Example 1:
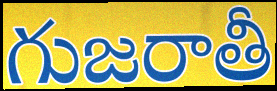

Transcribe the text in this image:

గుజరాతీ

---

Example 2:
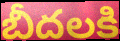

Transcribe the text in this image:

బీదలకి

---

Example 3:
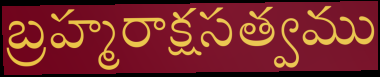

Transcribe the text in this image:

బ్రహ్మరాక్షసత్వము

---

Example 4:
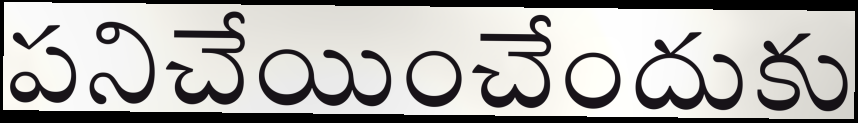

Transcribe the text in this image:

పనిచేయించేందుకు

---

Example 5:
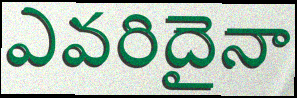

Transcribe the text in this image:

ఎవరిదైనా